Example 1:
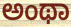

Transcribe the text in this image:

ಅಂಥಾ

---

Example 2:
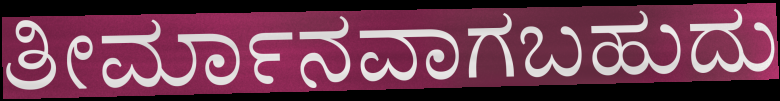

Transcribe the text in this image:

ತೀರ್ಮಾನವಾಗಬಹುದು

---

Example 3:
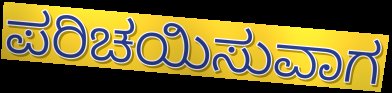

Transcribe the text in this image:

ಪರಿಚಯಿಸುವಾಗ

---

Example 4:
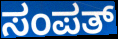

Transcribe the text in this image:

ಸಂಪತ್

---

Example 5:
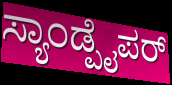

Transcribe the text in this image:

ಸ್ಯಾಂಡ್ಪೈಪರ್